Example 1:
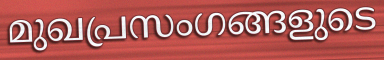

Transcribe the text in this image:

മുഖപ്രസംഗങ്ങളുടെ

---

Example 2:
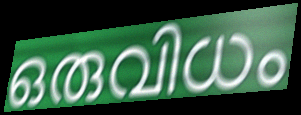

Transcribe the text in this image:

ഒരുവിധം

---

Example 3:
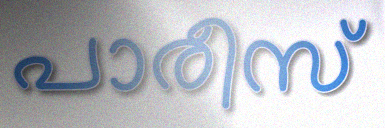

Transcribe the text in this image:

പാരീസ്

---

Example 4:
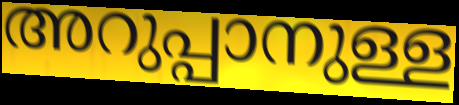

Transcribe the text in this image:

അറുപ്പാനുള്ള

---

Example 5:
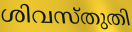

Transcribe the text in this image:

ശിവസ്തുതി